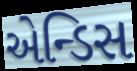
એન્ડિસ